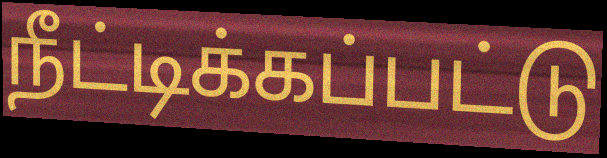
நீட்டிக்கப்பட்டு